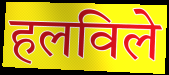
हलविले